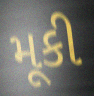
મૂકી